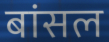
बांसल